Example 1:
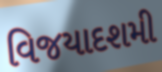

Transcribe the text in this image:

વિજયાદશમી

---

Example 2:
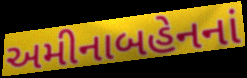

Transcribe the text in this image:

અમીનાબહેનનાં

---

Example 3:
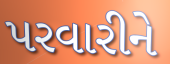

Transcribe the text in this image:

પરવારીને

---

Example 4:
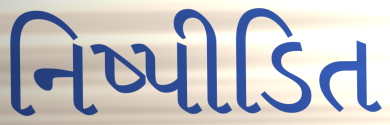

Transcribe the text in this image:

નિષ્પીડિત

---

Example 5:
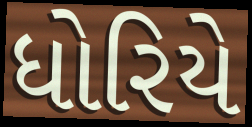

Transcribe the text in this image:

ધોરિયે